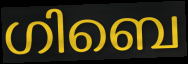
ഗിബെ